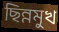
ছিন্নমুখ